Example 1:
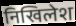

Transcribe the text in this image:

निखिलेश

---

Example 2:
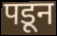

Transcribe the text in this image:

पडून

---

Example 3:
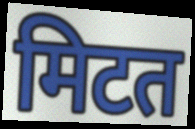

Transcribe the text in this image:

मिटत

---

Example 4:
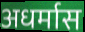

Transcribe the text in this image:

अधर्मास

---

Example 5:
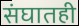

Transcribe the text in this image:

संघातही